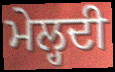
ਮੇਲ੍ਹਦੀ